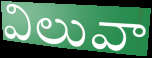
విలువా